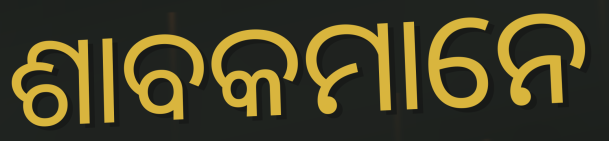
ଶାବକମାନେ